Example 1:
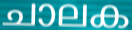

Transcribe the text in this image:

ചാലക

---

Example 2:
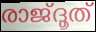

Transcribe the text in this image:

രാജ്ദൂത്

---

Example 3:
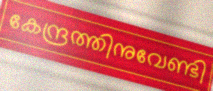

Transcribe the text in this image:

കേന്ദ്രത്തിനുവേണ്ടി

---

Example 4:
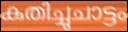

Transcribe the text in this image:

കുതിച്ചുചാട്ടം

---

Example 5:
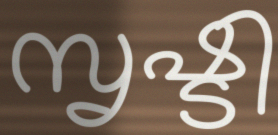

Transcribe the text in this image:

സൃഷ്ടി